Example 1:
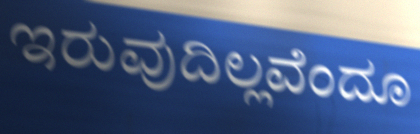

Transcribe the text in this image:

ಇರುವುದಿಲ್ಲವೆಂದೂ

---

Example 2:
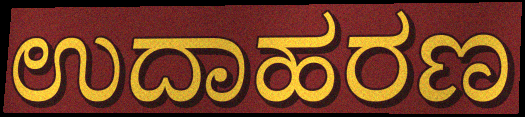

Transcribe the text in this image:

ಉದಾಹರಣ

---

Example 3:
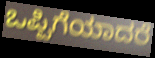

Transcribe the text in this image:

ಒಪ್ಪಿಗೆಯಾದರೆ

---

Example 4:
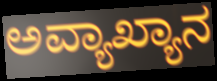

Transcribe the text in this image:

ಅವ್ಯಾಖ್ಯಾನ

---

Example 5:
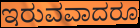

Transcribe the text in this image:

ಇರುವವಾದರೂ